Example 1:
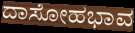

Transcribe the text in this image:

ದಾಸೋಹಭಾವ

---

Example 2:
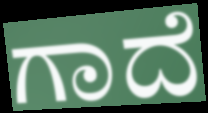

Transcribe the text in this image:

ಗಾದೆ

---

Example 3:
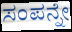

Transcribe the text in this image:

ಸಂಪನ್ನೇ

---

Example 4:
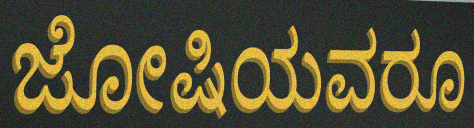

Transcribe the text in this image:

ಜೋಷಿಯವರೂ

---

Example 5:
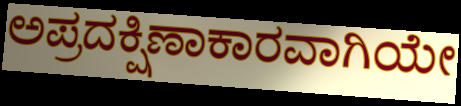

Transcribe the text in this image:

ಅಪ್ರದಕ್ಷಿಣಾಕಾರವಾಗಿಯೇ